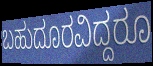
ಬಹುದೂರವಿದ್ದರೂ